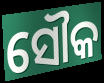
ସୌକ